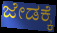
ಜೇಡಕ್ಕೆ